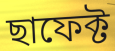
ছাফেক্ট